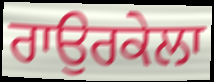
ਰਾਉਰਕੇਲਾ